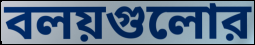
বলয়গুলোর